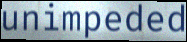
unimpeded